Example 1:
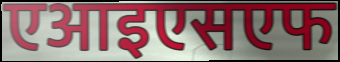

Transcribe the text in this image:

एआइएसएफ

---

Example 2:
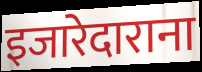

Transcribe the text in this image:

इजारेदाराना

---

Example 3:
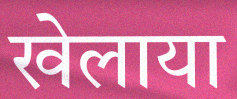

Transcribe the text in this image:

खेलाया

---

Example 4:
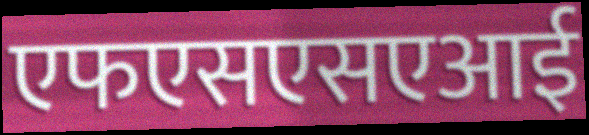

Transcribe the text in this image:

एफएसएसएआई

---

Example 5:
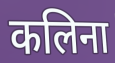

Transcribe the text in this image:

कलिना